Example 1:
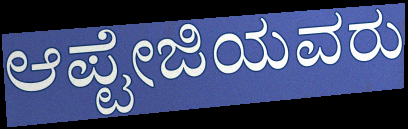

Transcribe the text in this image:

ಆಪ್ಟೇಜಿಯವರು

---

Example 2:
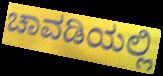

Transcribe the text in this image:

ಚಾವಡಿಯಲ್ಲಿ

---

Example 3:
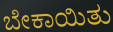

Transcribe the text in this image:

ಬೇಕಾಯಿತು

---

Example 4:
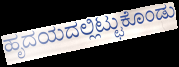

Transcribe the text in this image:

ಹೃದಯದಲ್ಲಿಟ್ಟುಕೊಂಡು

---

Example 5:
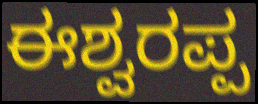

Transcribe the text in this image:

ಈಶ್ವರಪ್ಪ